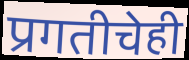
प्रगतीचेही